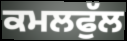
ਕਮਲਫੁੱਲ